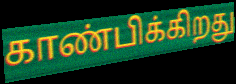
காண்பிக்கிறது